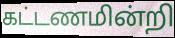
கட்டணமின்றி